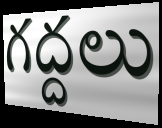
గద్దలు